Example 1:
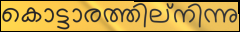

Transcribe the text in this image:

കൊട്ടാരത്തില്നിന്നു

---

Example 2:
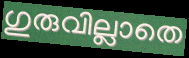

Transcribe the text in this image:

ഗുരുവില്ലാതെ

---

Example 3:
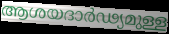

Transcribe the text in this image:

ആശയദാർഢ്യമുള്ള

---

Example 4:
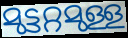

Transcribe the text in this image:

മുട്ടറ്റമുള്ള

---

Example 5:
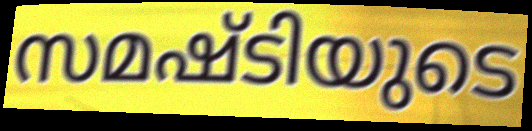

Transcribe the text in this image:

സമഷ്ടിയുടെ